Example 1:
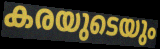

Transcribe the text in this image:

കരയുടെയും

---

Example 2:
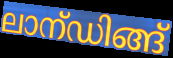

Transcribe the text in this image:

ലാന്ഡിങ്ങ്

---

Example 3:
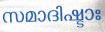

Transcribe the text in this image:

സമാദിഷ്ടാഃ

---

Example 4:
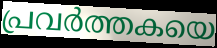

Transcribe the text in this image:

പ്രവർത്തകയെ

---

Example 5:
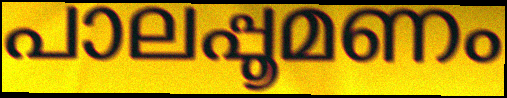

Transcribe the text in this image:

പാലപ്പൂമണം